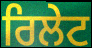
ਰਿਲੇਟ